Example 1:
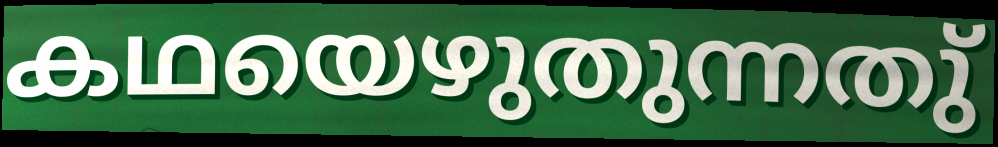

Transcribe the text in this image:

കഥയെഴുതുന്നതു്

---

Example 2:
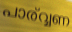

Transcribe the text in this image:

പാര്വ്വണ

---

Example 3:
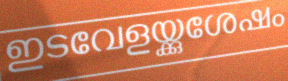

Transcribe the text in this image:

ഇടവേളയ്ക്കുശേഷം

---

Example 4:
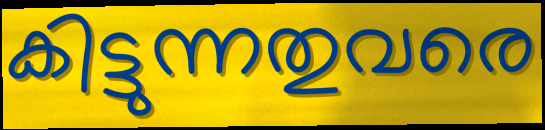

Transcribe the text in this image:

കിട്ടുന്നതുവരെ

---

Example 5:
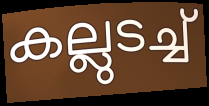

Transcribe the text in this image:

കല്ലുടച്ച്